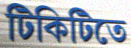
টিকিটিতে